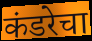
कंडरेचा